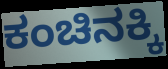
ಕಂಚಿನಕ್ಕಿ